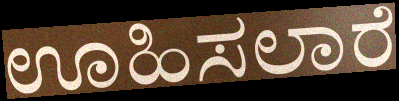
ಊಹಿಸಲಾರೆ